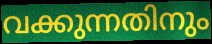
വക്കുന്നതിനും